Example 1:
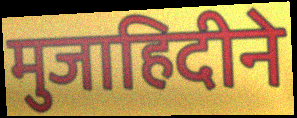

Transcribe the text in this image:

मुजाहिदीने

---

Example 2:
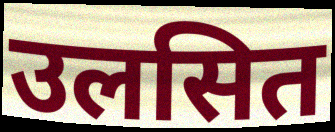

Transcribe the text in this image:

उलसित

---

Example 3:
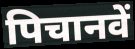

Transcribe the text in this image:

पिचानवें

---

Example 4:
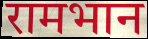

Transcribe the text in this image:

रामभान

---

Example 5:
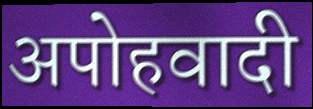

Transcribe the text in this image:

अपोहवादी